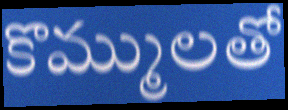
కొమ్ములతో